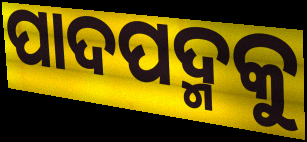
ପାଦପଦ୍ମକୁ